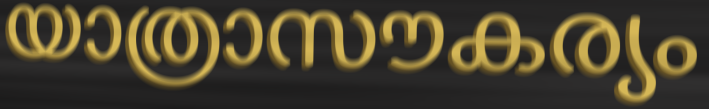
യാത്രാസൗകര്യം